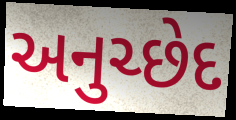
અનુચ્છેદ